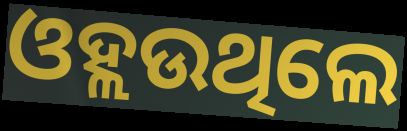
ଓହ୍ଲଉଥିଲେ